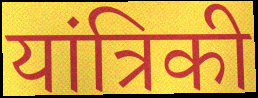
यांत्रिकी